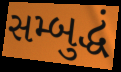
સમ્બુદ્ધં